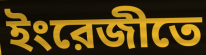
ইংরেজীতে